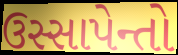
ઉસ્સાપેન્તો